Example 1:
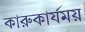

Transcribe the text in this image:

কারুকার্যময়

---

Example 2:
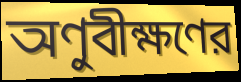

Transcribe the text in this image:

অণুবীক্ষণের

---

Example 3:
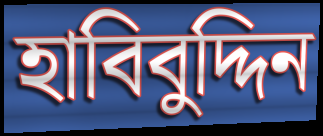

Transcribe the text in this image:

হাবিবুদ্দিন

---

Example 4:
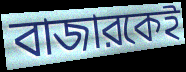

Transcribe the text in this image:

বাজারকেই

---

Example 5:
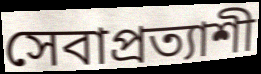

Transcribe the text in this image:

সেবাপ্রত্যাশী